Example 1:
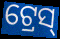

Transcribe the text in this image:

ଟ୍ରେସ୍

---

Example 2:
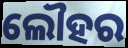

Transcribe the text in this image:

ଲୌହର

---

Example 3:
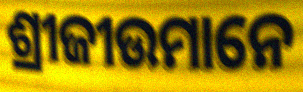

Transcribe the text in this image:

ଶ୍ରୀଜୀଉମାନେ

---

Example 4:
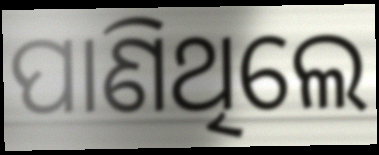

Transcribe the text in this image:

ପାଣିଥିଲେ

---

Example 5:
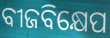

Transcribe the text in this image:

ବୀଜବିକ୍ଷେପ